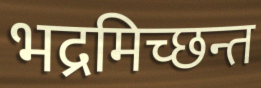
भद्रमिच्छन्त